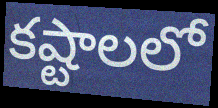
కష్టాలలో